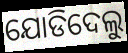
ଯୋଡିଦେଲୁ